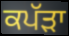
ਕਪੱੜਾ